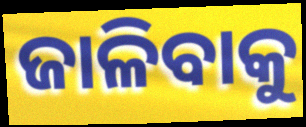
ଜାଳିବାକୁ